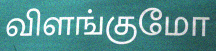
விளங்குமோ